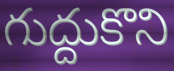
గుద్దుకొని